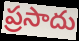
ప్రసాదు